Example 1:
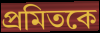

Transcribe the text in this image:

প্রমিতকে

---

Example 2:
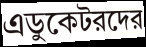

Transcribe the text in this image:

এডুকেটরদের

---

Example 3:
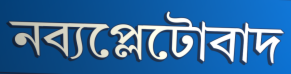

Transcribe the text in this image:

নব্যপ্লেটোবাদ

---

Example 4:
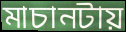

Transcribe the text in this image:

মাচানটায়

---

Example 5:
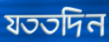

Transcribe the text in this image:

যততদিন